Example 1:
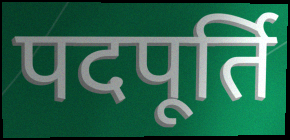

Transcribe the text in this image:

पदपूर्ति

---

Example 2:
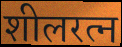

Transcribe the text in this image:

शीलरत्न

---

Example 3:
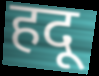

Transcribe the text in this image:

हदू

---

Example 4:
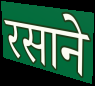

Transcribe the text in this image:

रसाने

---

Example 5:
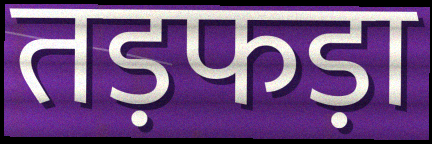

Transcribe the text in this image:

तड़फड़ा